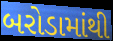
બરોડામાંથી